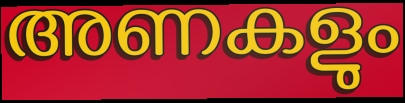
അണകളും